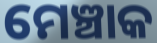
ମେଞ୍ଚାକ